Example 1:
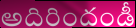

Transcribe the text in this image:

అదిరిందండీ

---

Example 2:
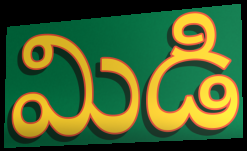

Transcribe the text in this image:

మిడి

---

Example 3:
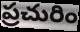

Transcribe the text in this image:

ప్రచురిం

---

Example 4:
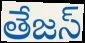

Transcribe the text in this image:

తేజస్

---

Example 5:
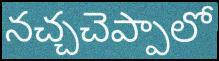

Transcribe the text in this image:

నచ్చచెప్పాలో